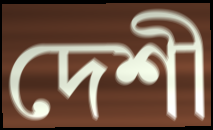
দেশী